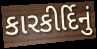
કારકીર્દિનું